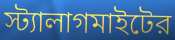
স্ট্যালাগমাইটের